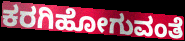
ಕರಗಿಹೋಗುವಂತೆ